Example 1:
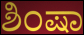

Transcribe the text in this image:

ಶಿಂಷಾ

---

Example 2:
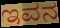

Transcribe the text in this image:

ಇವನ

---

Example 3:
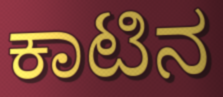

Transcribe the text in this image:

ಕಾಟಿನ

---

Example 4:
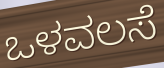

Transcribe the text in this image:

ಒಳವಲಸೆ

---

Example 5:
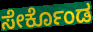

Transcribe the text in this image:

ಸೇರ್ಕೊಂಡ